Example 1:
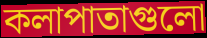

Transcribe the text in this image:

কলাপাতাগুলো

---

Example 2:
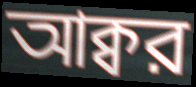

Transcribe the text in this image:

আক্বর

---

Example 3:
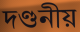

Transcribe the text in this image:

দণ্ডনীয়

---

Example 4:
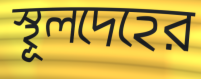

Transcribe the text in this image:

স্থূলদেহের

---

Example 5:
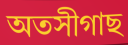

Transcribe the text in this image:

অতসীগাছ